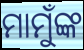
ମାମୁଁଙ୍କ